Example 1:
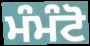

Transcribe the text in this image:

ਮੰਮੰਟੋ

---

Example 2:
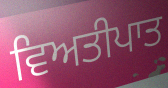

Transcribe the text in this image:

ਵਿਅਤੀਪਾਤ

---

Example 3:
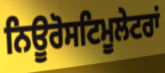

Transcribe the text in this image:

ਨਿਊਰੋਸਟਿਮੂਲੇਟਰਾਂ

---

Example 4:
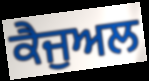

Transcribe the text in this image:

ਕੈਜੁਅਲ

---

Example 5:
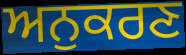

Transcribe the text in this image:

ਅਨੁਕਰਣ